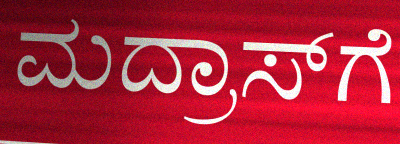
ಮದ್ರಾಸ್‍ಗೆ